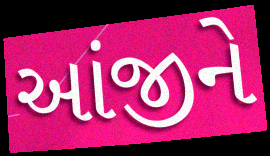
આંજીને